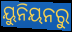
ୟୁନିୟନରୁ